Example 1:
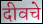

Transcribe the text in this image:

दीवचे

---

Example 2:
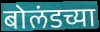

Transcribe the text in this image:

बोलंडच्या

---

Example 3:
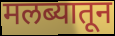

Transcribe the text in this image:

मलब्यातून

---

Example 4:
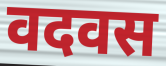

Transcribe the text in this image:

वदवस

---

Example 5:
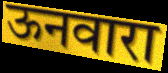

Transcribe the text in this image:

ऊनवारा